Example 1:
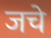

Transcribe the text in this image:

जचे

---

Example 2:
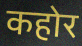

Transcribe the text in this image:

कहोर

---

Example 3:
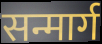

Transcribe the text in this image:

सन्मार्ग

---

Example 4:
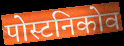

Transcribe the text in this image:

पोस्टनिकोव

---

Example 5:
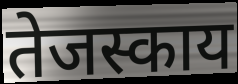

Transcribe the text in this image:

तेजस्काय